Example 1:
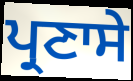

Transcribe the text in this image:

ਪ੍ਰਣਾਸੇ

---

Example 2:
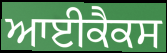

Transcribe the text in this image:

ਆਈਕੈਕਸ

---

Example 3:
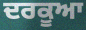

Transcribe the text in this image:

ਦਰਕੂਆ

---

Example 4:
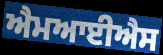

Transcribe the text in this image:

ਐਮਆਈਐਸ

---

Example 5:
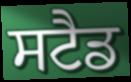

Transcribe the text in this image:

ਸਟੈਡ